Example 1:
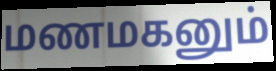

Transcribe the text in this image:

மணமகனும்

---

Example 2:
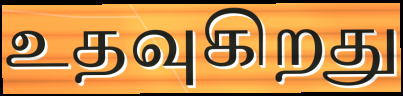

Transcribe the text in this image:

உதவுகிறது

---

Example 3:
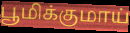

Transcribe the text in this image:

பூமிக்குமாய்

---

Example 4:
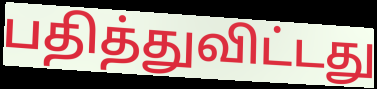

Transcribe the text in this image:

பதித்துவிட்டது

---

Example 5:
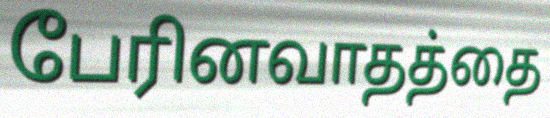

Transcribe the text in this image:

பேரினவாதத்தை